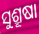
ସୁଶ୍ରୂଷା